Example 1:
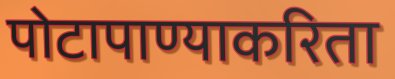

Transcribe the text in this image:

पोटापाण्याकरिता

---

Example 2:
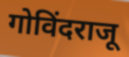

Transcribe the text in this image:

गोविंदराजू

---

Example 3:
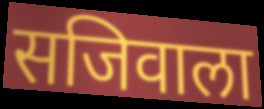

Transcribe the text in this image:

सजिवाला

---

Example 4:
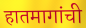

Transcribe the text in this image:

हातमागांची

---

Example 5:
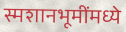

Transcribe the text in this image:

स्मशानभूमींमध्ये